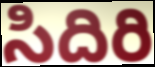
సిదిరి